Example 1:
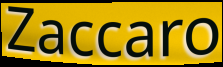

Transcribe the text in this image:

Zaccaro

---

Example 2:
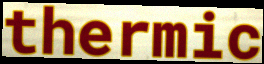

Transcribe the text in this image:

thermic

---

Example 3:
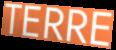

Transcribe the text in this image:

TERRE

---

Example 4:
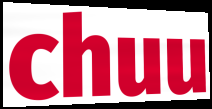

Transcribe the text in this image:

chuu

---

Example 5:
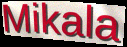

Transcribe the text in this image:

Mikala